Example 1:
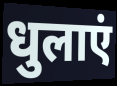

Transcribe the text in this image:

धुलाएं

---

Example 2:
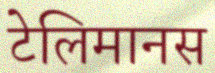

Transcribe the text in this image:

टेलिमानस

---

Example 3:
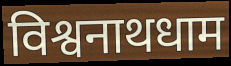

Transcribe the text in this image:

विश्वनाथधाम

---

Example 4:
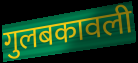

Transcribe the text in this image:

गुलबकावली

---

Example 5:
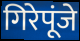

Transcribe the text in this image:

गिरेपूंजे